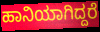
ಹಾನಿಯಾಗಿದ್ದರೆ